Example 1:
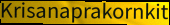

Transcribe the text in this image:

Krisanaprakornkit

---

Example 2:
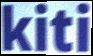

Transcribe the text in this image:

kiti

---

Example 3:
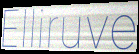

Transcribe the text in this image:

Elliruve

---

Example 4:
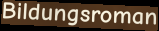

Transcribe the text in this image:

Bildungsroman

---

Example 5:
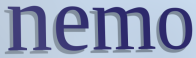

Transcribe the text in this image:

nemo